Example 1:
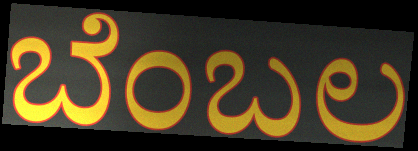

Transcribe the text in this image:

ಬೆಂಬಲ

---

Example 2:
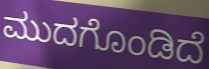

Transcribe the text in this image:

ಮುದಗೊಂಡಿದೆ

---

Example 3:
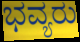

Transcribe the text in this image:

ಭವ್ಯರು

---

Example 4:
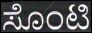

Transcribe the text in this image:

ಸೊಂಟಿ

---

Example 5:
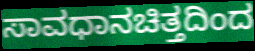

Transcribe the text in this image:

ಸಾವಧಾನಚಿತ್ತದಿಂದ